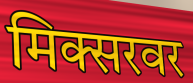
मिक्‍सरवर